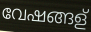
വേഷങ്ങള്